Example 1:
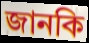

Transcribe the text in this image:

জানকি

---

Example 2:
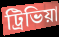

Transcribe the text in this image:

ট্রিভিয়া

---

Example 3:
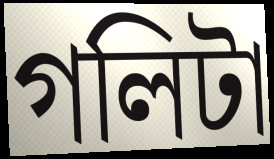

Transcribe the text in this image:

গলিটা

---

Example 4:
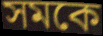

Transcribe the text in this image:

সমকে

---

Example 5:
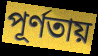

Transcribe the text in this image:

পূর্ণতায়